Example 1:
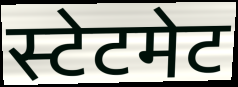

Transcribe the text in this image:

स्टेटमेट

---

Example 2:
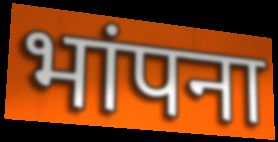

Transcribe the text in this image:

भांपना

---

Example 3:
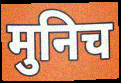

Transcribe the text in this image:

मुनिच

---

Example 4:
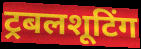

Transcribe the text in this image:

ट्रबलशूटिंग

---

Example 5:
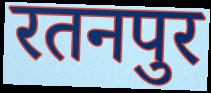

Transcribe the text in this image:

रतनपुर